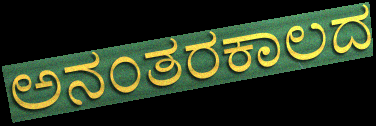
ಅನಂತರಕಾಲದ